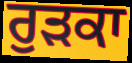
ਰੁੜਕਾ